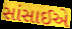
સાંસાઈએ